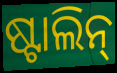
ଷ୍ଟାଲିନ୍